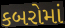
કબરોમાં